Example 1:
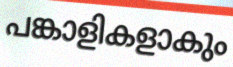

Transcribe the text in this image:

പങ്കാളികളാകും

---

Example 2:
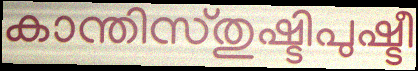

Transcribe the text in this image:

കാന്തിസ്തുഷ്ടിപുഷ്ടീ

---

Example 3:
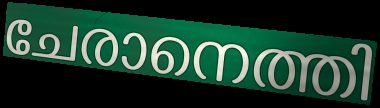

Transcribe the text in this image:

ചേരാനെത്തി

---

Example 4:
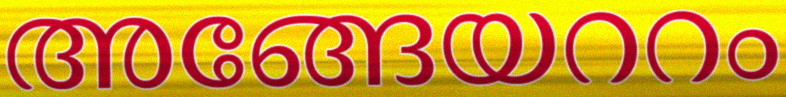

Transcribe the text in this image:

അങ്ങേയററം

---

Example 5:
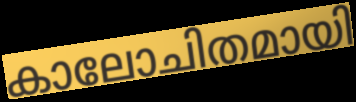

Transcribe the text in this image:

കാലോചിതമായി